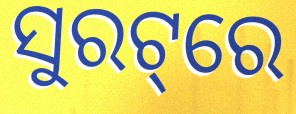
ସୁରଟ୍‌ରେ